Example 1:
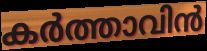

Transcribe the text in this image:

കർത്താവിൻ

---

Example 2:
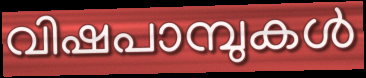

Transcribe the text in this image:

വിഷപാമ്പുകൾ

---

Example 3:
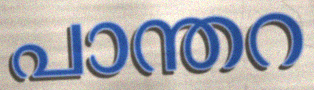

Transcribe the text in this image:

പാന്തറ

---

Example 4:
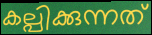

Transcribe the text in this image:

കല്പിക്കുന്നത്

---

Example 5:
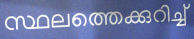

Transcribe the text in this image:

സ്ഥലത്തെക്കുറിച്ച്